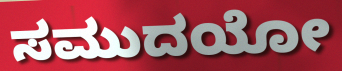
ಸಮುದಯೋ